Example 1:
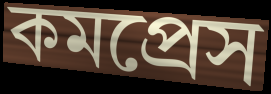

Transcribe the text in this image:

কমপ্রেস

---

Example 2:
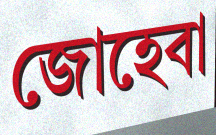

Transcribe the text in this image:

জোহেবা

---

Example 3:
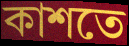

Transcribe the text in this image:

কাশতে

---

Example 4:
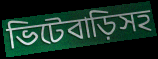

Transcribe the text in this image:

ভিটেবাড়িসহ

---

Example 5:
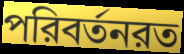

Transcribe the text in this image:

পরিবর্তনরত